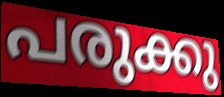
പരുക്കു